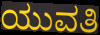
ಯುವತಿ